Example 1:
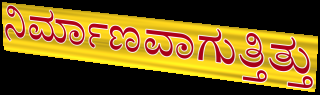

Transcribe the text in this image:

ನಿರ್ಮಾಣವಾಗುತ್ತಿತ್ತು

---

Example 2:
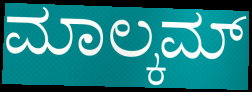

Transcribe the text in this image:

ಮಾಲ್ಕಮ್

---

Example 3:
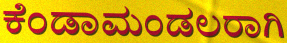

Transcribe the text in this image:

ಕೆಂಡಾಮಂಡಲರಾಗಿ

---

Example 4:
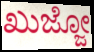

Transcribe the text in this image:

ಖುಜ್ಜೋ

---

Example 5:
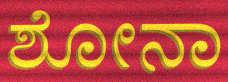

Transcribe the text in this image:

ಶೋನಾ